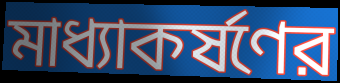
মাধ্যাকর্ষণের